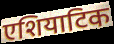
एशियाटिक